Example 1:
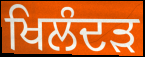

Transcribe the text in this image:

ਖਿਲੰਦੜ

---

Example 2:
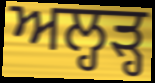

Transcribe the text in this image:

ਅਲ੍ਹੜ੍ਹ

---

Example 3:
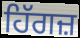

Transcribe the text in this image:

ਹਿੱਗਜ਼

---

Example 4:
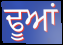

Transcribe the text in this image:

ਢੂਆਂ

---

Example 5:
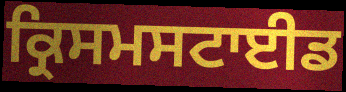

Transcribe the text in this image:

ਕ੍ਰਿਸਮਸਟਾਈਡ